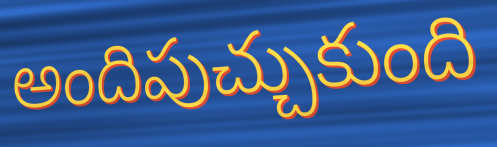
అందిపుచ్చుకుంది